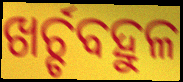
ଖର୍ଚ୍ଚବହୁଳ